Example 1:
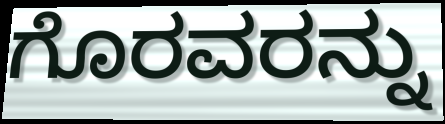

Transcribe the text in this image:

ಗೊರವರನ್ನು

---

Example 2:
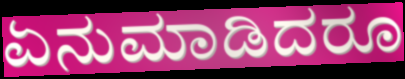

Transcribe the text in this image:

ಏನುಮಾಡಿದರೂ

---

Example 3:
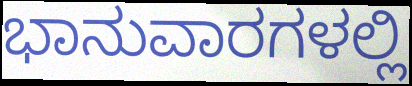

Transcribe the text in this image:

ಭಾನುವಾರಗಳಲ್ಲಿ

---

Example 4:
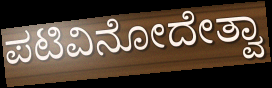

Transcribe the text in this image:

ಪಟಿವಿನೋದೇತ್ವಾ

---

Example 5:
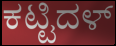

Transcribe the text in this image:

ಕಟ್ಟಿದಳ್